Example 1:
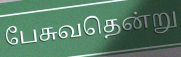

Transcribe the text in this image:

பேசுவதென்று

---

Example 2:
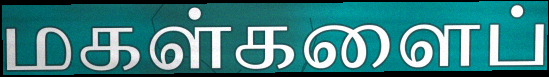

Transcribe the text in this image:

மகள்களைப்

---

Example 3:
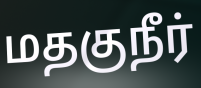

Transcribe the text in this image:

மதகுநீர்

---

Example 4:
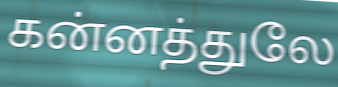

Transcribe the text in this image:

கன்னத்துலே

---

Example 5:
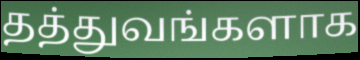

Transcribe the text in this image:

தத்துவங்களாக